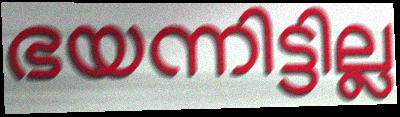
ഭയന്നിട്ടില്ല